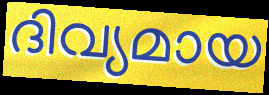
ദിവ്യമായ